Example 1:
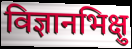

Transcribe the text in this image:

विज्ञानभिक्षु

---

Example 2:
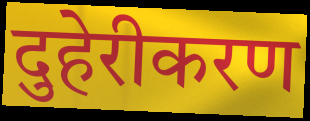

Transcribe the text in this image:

दुहेरीकरण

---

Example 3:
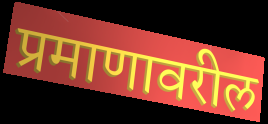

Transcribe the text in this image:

प्रमाणावरील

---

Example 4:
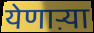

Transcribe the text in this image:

येणाऱ्‍या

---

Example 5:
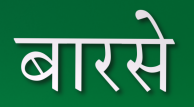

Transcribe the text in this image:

बारसे